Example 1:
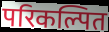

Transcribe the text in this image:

परिकल्पित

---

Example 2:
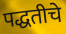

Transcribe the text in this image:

पद्धतीचे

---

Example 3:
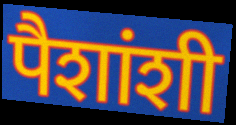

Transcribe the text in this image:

पैशांशी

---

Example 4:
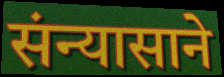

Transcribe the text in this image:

संन्यासाने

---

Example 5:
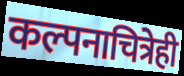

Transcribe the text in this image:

कल्पनाचित्रेही